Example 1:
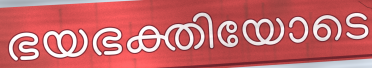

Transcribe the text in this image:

ഭയഭക്തിയോടെ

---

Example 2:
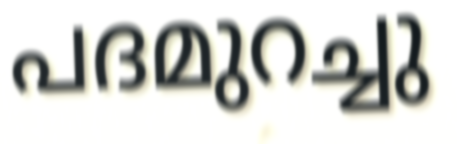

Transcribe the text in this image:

പദമുറച്ചു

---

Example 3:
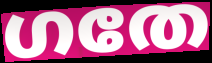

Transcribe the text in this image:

ഗതേ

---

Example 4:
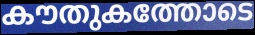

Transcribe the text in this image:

കൗതുകത്തോടെ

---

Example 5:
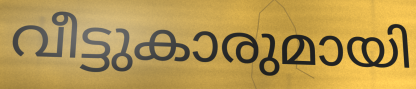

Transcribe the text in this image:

വീട്ടുകാരുമായി